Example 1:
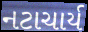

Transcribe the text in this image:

નટાચાર્ય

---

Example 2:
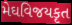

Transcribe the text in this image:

મેઘવિજયકૃત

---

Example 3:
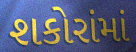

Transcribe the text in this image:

શકોરાંમાં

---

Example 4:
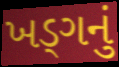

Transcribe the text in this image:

ખડ્ગનું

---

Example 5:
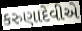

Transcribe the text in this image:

કરુણાદેવીએ